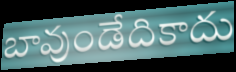
బావుండేదికాదు